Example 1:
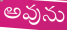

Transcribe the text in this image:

అవును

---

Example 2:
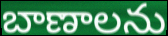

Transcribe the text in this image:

బాణాలను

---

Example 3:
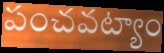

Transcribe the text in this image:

పంచవట్యాం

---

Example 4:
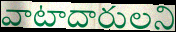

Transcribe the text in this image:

వాటాదారులని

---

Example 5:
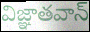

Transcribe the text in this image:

విజ్ఞాతవాన్